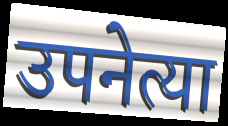
उपनेत्या